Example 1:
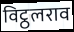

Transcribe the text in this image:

विट्ठलराव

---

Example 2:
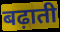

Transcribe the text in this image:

बढ़ाती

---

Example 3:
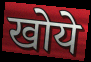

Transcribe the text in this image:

खोये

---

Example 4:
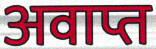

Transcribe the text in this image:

अवाप्त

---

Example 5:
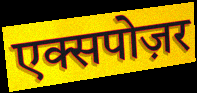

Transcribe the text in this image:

एक्सपोज़र